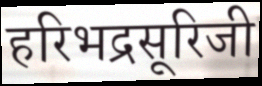
हरिभद्रसूरिजी